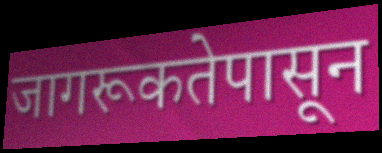
जागरूकतेपासून